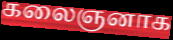
கலைஞனாக